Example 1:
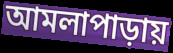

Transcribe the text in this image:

আমলাপাড়ায়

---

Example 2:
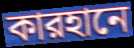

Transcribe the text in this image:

কারহানে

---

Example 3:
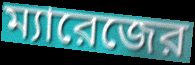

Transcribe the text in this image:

ম্যারেজের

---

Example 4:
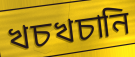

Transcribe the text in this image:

খচখচানি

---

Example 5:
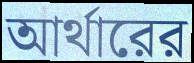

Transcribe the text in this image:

আর্থারের